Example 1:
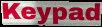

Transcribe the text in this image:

Keypad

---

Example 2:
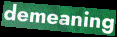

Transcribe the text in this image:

demeaning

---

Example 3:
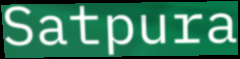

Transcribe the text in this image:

Satpura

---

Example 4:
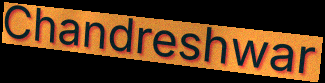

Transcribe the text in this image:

Chandreshwar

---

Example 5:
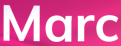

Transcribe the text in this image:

Marc